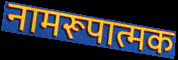
नामरूपात्मक